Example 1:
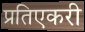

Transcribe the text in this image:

प्रतिएकरी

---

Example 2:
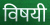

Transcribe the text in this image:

विषयी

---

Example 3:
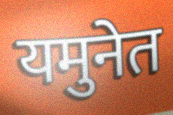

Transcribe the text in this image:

यमुनेत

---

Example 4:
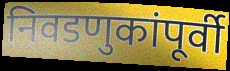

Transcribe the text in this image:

निवडणुकांपूर्वी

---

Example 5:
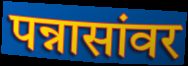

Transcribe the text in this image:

पन्नासांवर